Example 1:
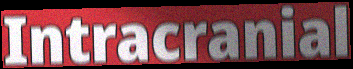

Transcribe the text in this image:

Intracranial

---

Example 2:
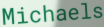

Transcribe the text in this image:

Michaels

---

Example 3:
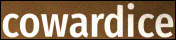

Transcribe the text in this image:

cowardice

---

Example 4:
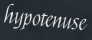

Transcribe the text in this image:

hypotenuse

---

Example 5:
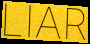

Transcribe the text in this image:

LIAR